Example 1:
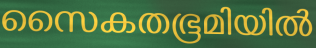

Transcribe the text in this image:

സൈകതഭൂമിയിൽ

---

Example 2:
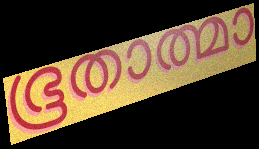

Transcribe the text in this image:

ഭൂതാത്മാ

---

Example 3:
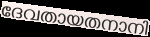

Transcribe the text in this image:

ദേവതായതനാനി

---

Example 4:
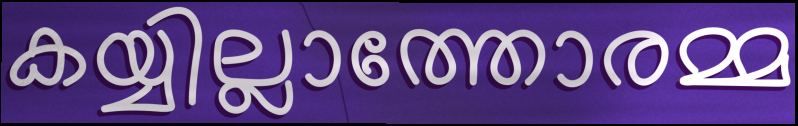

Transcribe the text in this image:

കയ്യില്ലാത്തോരമ്മ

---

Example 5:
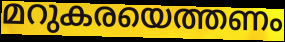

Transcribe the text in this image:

മറുകരയെത്തണം